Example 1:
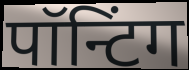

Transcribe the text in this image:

पॉन्टिंग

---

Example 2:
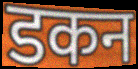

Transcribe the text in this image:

डकन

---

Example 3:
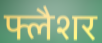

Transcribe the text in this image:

फ्लैशर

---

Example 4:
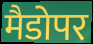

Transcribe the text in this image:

मैडोपर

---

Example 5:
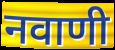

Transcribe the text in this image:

नवाणी